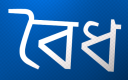
বৈধ